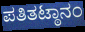
ಪತಿತಟ್ಠಾನಂ